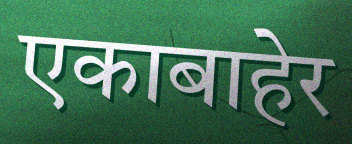
एकाबाहेर